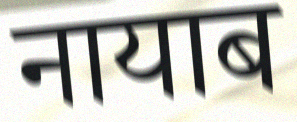
नायाब